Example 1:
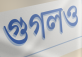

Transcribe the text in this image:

গুগলও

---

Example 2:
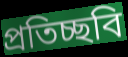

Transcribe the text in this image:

প্রতিচ্ছবি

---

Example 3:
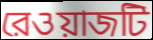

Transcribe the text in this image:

রেওয়াজটি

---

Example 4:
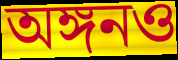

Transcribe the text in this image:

অঙ্গনও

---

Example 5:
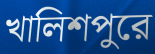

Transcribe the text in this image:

খালিশপুরে